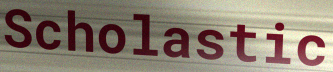
Scholastic